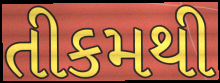
તીકમથી